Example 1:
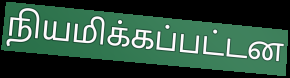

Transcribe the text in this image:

நியமிக்கப்பட்டன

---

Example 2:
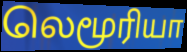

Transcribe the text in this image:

லெமூரியா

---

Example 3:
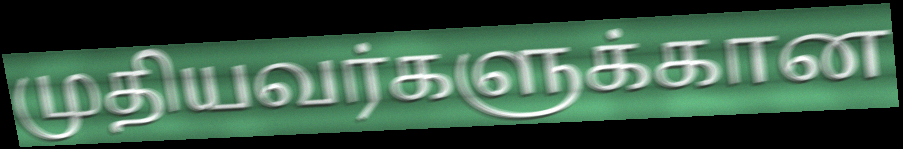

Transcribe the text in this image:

முதியவர்களுக்கான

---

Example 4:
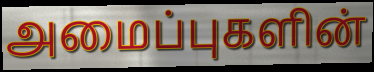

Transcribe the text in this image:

அமைப்புகளின்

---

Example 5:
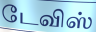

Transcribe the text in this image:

டேவிஸ்